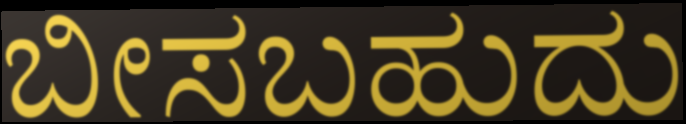
ಬೀಸಬಹುದು